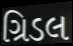
ગ્રિડલ